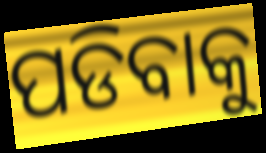
ପଡିବାକୁ